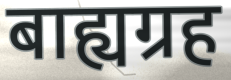
बाह्यग्रह